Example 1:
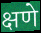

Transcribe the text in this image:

क्षणे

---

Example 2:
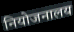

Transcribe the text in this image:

नियोजनालय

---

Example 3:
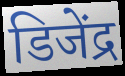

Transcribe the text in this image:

डिजेंद्र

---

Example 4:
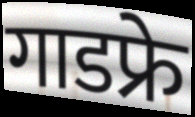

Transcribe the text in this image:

गाडफ्रे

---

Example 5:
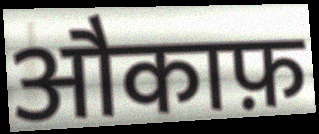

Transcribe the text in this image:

औकाफ़